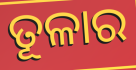
ତୂଳାର